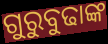
ଗୁରୁବୁଢାଙ୍କ